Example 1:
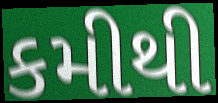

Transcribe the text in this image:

કમીથી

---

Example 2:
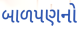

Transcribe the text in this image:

બાળપણનો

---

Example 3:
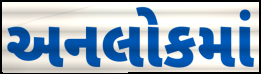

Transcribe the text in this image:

અનલોકમાં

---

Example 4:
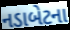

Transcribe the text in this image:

નડાબેટના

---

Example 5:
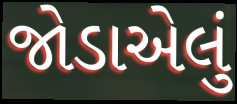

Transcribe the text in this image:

જોડાએલું